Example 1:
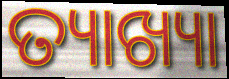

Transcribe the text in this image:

ତ୍ୟାଖ୍ୟା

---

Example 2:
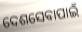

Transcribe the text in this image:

ଦେଶସେବାପାଇଁ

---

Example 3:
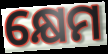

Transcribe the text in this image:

କ୍ଷେମ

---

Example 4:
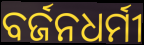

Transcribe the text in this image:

ବର୍ଜନଧର୍ମୀ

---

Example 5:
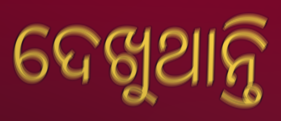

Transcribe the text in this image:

ଦେଖୁଥାନ୍ତି